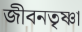
জীবনতৃষ্ণা